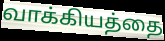
வாக்கியத்தை